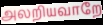
அலறியவாறே